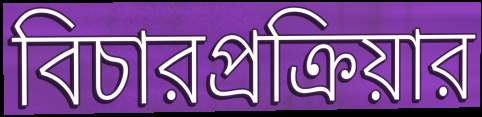
বিচারপ্রক্রিয়ার